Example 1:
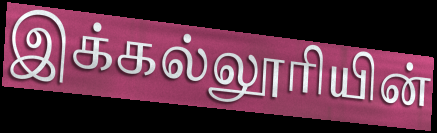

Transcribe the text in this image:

இக்கல்லூரியின்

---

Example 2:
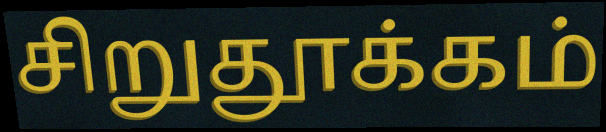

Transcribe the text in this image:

சிறுதூக்கம்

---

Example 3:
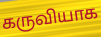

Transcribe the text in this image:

கருவியாக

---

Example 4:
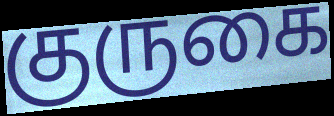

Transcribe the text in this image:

குருகை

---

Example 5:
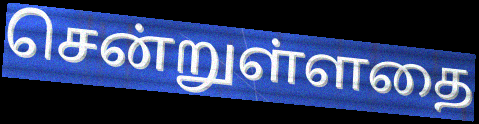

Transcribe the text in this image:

சென்றுள்ளதை